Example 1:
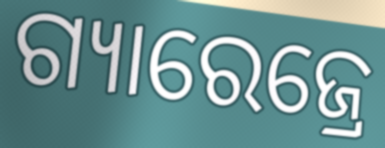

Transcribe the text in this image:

ଗ୍ୟାରେଜ୍ରେ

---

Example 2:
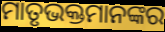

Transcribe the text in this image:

ମାତୃଭକ୍ତମାନଙ୍କର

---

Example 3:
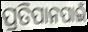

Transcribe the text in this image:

ପ୍ରତିପାନପାଇଁ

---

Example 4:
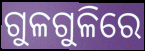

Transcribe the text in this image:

ଗୁଳଗୁଳିରେ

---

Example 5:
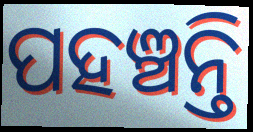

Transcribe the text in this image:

ପହଞ୍ଚନ୍ତି